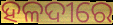
ହଳଦୀରେ